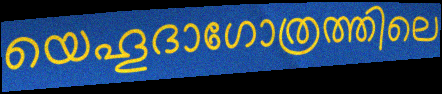
യെഹൂദാഗോത്രത്തിലെ